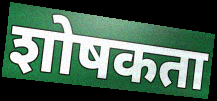
शोषकता